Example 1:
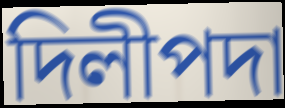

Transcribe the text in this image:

দিলীপদা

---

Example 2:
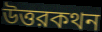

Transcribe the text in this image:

উত্তরকথন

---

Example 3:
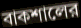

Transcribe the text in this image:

বাকশালের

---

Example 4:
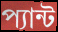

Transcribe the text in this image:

প্যান্ট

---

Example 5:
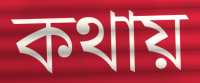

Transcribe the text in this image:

কথায়